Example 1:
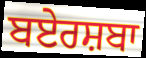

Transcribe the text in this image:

ਬਏਰਸ਼ਬਾ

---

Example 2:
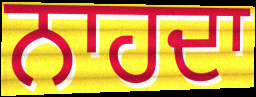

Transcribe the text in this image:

ਨਾਹਦਾ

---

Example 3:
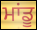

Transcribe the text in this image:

ਮਾਂਡੂ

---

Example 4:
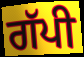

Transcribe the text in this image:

ਗੱਪੀ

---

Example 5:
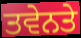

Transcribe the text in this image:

ਤਵੇਨਤੇ